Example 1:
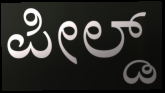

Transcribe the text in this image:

ಪೀಲ್ಡ್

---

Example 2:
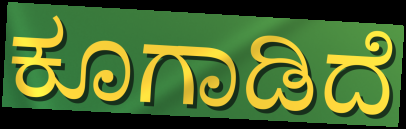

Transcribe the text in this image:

ಕೂಗಾಡಿದೆ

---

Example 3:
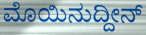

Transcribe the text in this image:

ಮೊಯಿನುದ್ದೀನ್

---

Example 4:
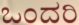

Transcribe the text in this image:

ಒಂದರಿ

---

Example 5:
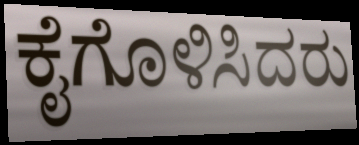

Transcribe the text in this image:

ಕೈಗೊಳಿಸಿದರು